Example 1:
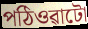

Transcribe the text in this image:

পঠিওৱাটো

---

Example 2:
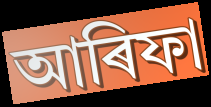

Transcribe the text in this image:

আৰিফা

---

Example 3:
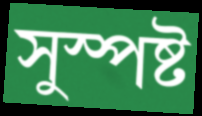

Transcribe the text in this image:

সুস্পষ্ট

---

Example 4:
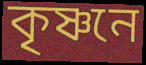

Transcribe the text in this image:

কৃষ্ণনে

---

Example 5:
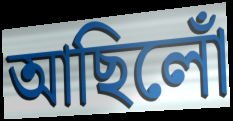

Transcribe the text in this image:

আছিলোঁ